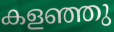
കളഞ്ഞു